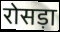
रोसड़ा